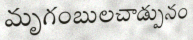
మృగంబులచాడ్పునం